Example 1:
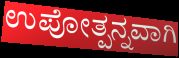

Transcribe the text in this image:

ಉಪೋತ್ಪನ್ನವಾಗಿ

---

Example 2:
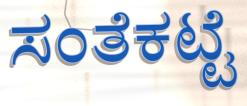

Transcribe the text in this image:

ಸಂತೆಕಟ್ಟೆ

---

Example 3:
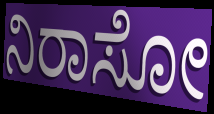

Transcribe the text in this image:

ನಿರಾಸೋ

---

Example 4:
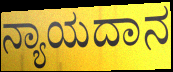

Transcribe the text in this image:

ನ್ಯಾಯದಾನ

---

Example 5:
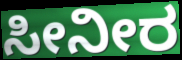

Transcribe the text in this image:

ಸೀನೀರ